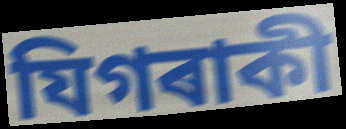
যিগৰাকী